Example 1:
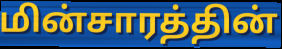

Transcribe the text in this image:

மின்சாரத்தின்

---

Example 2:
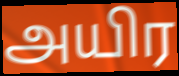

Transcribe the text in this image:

அயிர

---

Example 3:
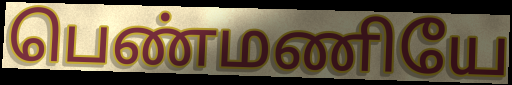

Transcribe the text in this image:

பெண்மணியே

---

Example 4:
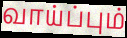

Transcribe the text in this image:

வாய்ப்பும்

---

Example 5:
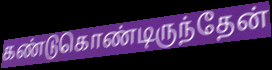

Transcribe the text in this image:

கண்டுகொண்டிருந்தேன்